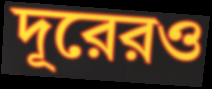
দূরেরও